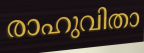
രാഹുവിതാ